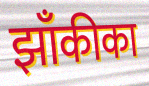
झाँकीका